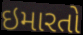
ઇમારતો